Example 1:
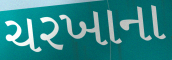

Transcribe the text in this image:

ચરખાના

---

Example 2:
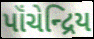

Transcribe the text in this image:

પૉંચેન્દ્રિય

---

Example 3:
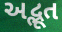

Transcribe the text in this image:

અદ્ભૂત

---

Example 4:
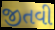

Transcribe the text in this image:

જીતવી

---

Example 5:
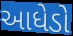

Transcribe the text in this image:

આધેડો